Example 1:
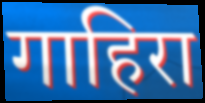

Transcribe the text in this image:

गाहिरा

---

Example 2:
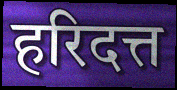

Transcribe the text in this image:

हरिदत्त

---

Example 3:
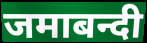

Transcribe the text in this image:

जमाबन्दी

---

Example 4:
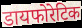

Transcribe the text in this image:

डायफोरेटिक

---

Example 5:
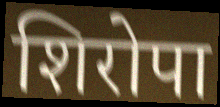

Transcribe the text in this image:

शिरोपा